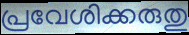
പ്രവേശിക്കരുതു